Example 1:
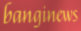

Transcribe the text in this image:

banginews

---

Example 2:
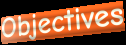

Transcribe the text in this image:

Objectives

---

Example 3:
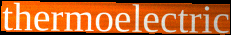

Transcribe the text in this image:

thermoelectric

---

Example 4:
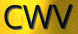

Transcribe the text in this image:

CWV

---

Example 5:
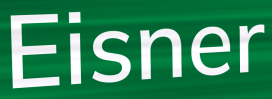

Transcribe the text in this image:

Eisner